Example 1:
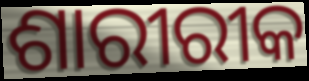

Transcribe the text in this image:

ଶାରୀରୀକ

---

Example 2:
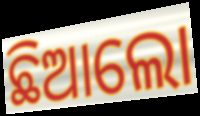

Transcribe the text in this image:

ଛିଆଲୋ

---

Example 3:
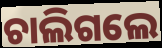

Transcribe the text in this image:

ଚାଲିଗଲେ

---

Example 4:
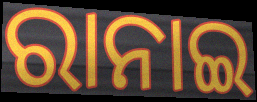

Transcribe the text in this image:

ରାନାଇ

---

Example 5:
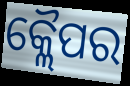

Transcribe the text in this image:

କ୍ଲୈପର